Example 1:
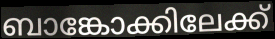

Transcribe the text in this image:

ബാങ്കോക്കിലേക്ക്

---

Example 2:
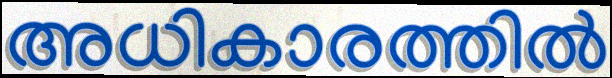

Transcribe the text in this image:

അധികാരത്തിൽ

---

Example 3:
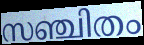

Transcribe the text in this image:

സഞ്ചിതം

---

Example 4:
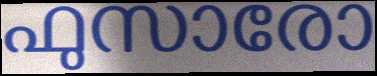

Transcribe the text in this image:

ഫുസാരോ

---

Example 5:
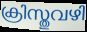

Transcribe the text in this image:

ക്രിസ്തുവഴി